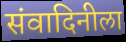
संवादिनीला